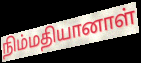
நிம்மதியானாள்